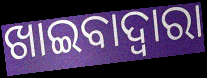
ଖାଇବାଦ୍ୱାରା